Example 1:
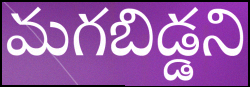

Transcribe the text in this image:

మగబిడ్డని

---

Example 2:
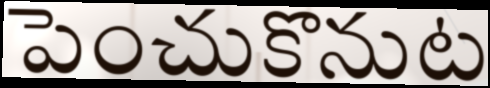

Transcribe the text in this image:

పెంచుకొనుట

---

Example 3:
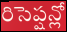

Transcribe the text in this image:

రిసెప్షన్లో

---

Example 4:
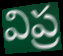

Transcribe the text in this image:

విప్ర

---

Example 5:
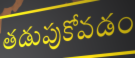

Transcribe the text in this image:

తడుపుకోవడం